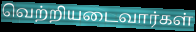
வெற்றியடைவார்கள்